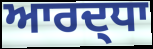
ਆਰਦ੍ਧਾ